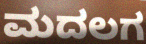
ಮದಲಗ